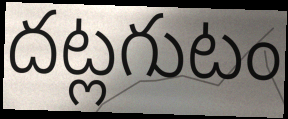
దట్లగుటం